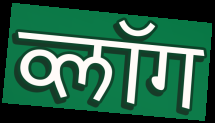
व्लॉग